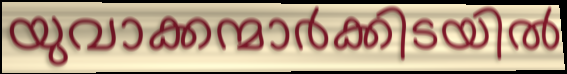
യുവാക്കന്മാർക്കിടയിൽ